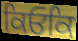
ਕਿਓਕਿ